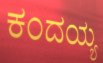
ಕಂದಯ್ಯ